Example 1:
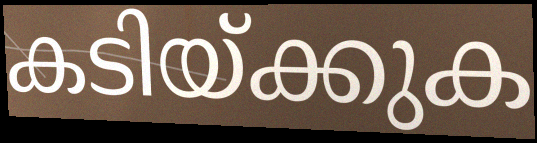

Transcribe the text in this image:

കടിയ്ക്കുക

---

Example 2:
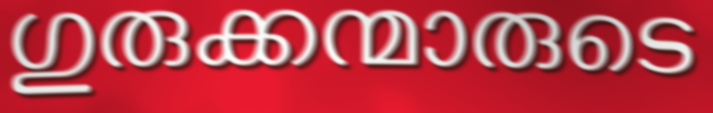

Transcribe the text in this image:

ഗുരുക്കന്മാരുടെ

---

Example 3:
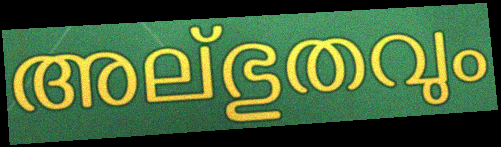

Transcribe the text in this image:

അല്ഭുതവും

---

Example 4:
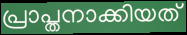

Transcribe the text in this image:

പ്രാപ്തനാക്കിയത്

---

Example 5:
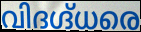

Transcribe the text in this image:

വിദഗ്ദ്ധരെ